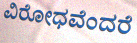
ವಿರೋಧವೆಂದರೆ